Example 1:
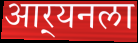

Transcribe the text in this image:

आर्यनला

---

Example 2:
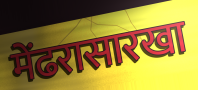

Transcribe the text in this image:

मेंढरासारखा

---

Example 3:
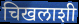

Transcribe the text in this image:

चिखलाशी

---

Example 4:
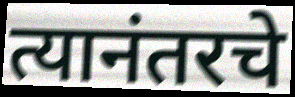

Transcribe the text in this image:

त्यानंतरचे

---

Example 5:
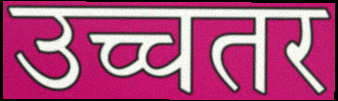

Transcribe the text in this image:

उच्चतर